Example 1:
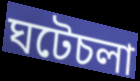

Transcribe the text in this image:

ঘটেচলা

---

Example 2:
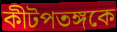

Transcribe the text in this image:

কীটপতঙ্গকে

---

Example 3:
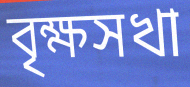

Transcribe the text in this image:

বৃক্ষসখা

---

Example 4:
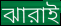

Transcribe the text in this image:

ঝারাই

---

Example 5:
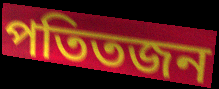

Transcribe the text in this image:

পতিতজন